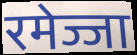
रमेज्जा